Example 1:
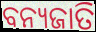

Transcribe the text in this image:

ବନ୍ୟଜାତି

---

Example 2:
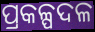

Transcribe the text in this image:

ପ୍ରକଳ୍ପଦଳ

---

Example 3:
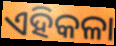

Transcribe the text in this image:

ଏହିକଳା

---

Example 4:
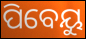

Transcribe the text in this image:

ପିବେୟୁ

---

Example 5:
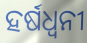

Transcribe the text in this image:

ହର୍ଷଧ୍ୱନୀ